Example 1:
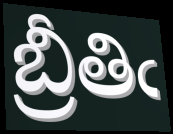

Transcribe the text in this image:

బ్రీతిఁ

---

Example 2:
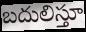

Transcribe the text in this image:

బదులిస్తూ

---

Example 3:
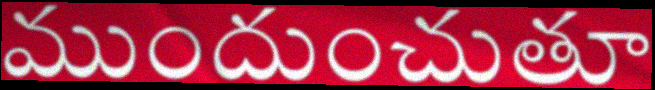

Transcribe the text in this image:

ముందుంచుతూ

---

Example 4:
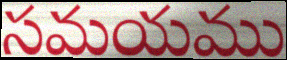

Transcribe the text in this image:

సమయము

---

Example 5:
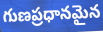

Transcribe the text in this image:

గుణప్రధానమైన